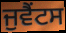
ਜੁਵੈਂਟਸ